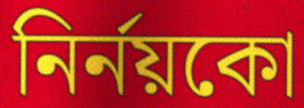
নিৰ্নয়কো